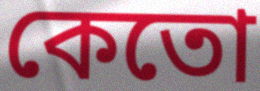
কেতো